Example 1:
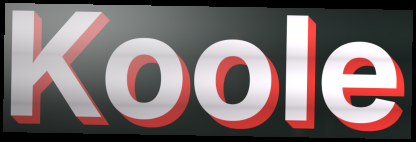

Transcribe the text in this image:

Koole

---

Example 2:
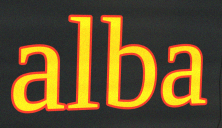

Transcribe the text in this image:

alba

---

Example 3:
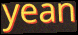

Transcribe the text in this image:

yean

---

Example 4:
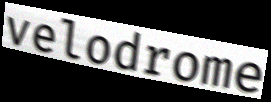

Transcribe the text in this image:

velodrome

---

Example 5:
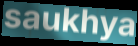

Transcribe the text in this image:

saukhya